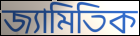
জ্যামিতিক